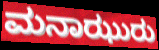
ಮನಾಝುರು